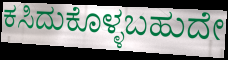
ಕಸಿದುಕೊಳ್ಳಬಹುದೇ